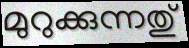
മുറുക്കുന്നതു്